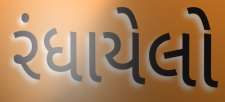
રંધાયેલો